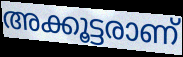
അക്കൂട്ടരാണ്